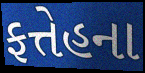
ફત્તેહના